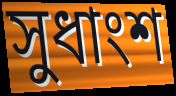
সুধাংশ